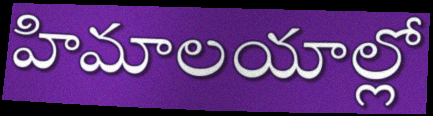
హిమాలయాల్లో